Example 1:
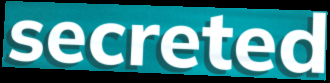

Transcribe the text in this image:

secreted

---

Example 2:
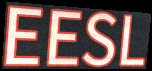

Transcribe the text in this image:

EESL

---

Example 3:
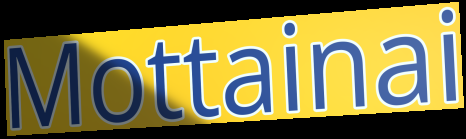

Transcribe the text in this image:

Mottainai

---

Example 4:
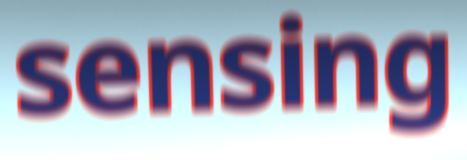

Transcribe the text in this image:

sensing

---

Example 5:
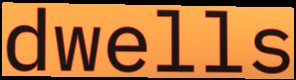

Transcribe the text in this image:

dwells